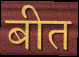
बीत